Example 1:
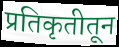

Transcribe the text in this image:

प्रतिकृतीतून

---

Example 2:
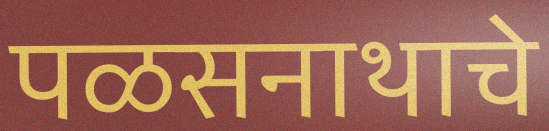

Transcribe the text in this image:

पळसनाथाचे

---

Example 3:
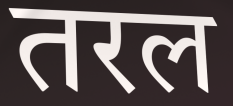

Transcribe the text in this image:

तरल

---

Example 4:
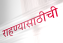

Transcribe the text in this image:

राहण्यासाठीची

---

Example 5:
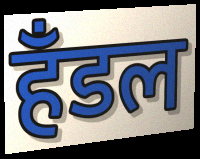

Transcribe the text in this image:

हॅंडल